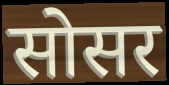
सोसर